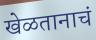
खेळतानाचं